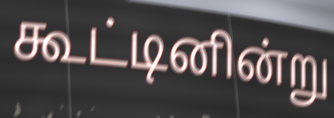
கூட்டினின்று